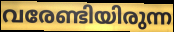
വരേണ്ടിയിരുന്ന